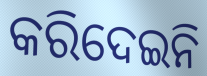
କରିଦେଇନି